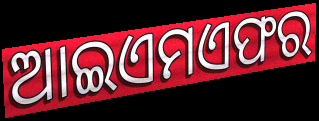
ଆଇଏମଏଫର